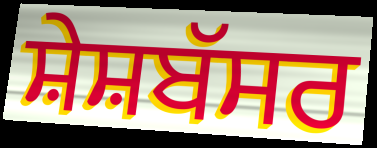
ਸ਼ੇਸ਼ਬੱਸਰ